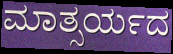
ಮಾತ್ಸರ್ಯದ